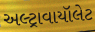
અલ્ટ્રાવાયૉલેટ